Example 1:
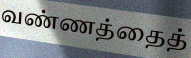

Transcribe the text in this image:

வண்ணத்தைத்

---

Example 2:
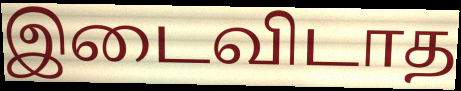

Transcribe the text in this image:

இடைவிடாத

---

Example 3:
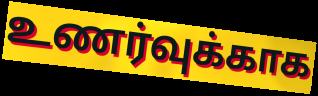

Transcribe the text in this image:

உணர்வுக்காக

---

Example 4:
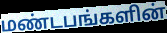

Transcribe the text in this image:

மண்டபங்களின்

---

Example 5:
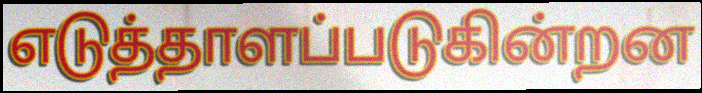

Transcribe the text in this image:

எடுத்தாளப்படுகின்றன